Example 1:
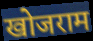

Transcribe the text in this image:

खोजराम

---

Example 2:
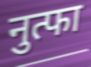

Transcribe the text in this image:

नुत्फा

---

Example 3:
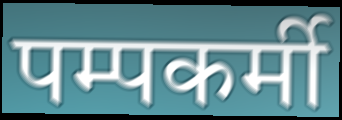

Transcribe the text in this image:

पम्पकर्मी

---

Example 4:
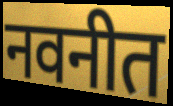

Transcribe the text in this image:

नवनीत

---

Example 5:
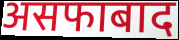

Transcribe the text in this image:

असफाबाद